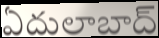
ఏదులాబాద్